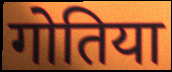
गोतिया